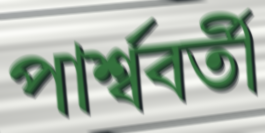
পার্শ্ববর্তী